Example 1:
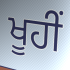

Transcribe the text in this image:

ਖੂਹੀਂ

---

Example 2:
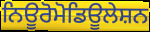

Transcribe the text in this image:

ਨਿਊਰੋਮੋਡਿਊਲੇਸ਼ਨ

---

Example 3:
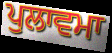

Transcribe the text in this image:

ਪੁਲਾਵਮਾ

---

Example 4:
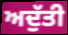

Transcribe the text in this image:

ਅਦੁੱਤੀ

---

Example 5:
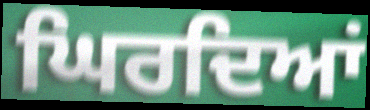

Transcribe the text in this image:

ਘਿਰਦਿਆਂ